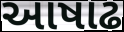
આષાઢ